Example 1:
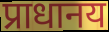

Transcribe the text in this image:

प्राधानय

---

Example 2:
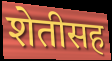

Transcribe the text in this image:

शेतीसह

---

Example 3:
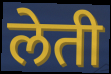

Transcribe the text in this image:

लेती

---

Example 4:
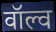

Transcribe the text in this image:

वॉल्व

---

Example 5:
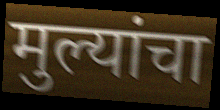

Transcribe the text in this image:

मुल्यांचा